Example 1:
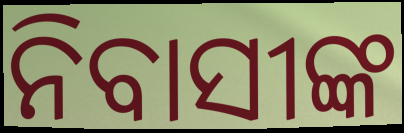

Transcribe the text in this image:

ନିବାସୀଙ୍କ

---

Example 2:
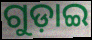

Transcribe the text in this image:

ଗୁଡ଼ାଇ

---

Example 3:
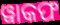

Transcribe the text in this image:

ୱାକଫ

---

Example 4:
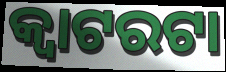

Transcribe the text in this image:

କ୍ଵାଟରଟା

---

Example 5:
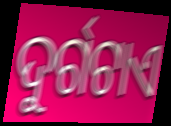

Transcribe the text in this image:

ଦୁର୍ଗଟାଏ